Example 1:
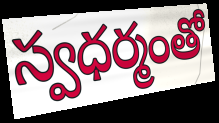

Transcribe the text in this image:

స్వధర్మంతో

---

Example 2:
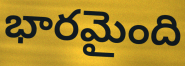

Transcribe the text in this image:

భారమైంది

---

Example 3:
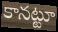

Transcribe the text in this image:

కానట్టూ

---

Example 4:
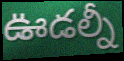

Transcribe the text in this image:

ఊడల్నీ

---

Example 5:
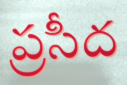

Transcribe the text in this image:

ప్రసీద